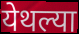
येथल्या